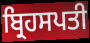
ਬ੍ਰਿਹਸਪਤੀ